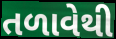
તળાવેથી